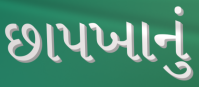
છાપખાનું